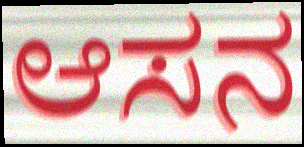
ಆಸನ